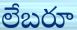
లేబరూ